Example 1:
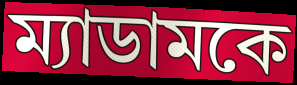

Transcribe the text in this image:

ম্যাডামকে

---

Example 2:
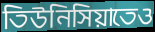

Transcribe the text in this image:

তিউনিসিয়াতেও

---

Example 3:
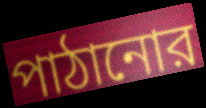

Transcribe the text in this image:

পাঠানোর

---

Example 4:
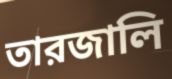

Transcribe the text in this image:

তারজালি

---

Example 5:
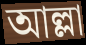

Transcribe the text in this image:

আল্লা